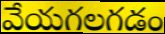
వేయగలగడం